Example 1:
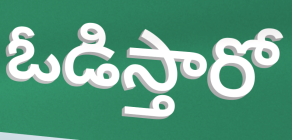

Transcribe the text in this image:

ఓడిస్తారో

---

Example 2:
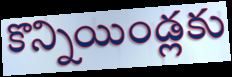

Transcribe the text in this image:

కొన్నియిండ్లకు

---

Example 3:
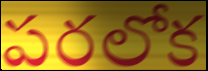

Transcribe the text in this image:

పరలోక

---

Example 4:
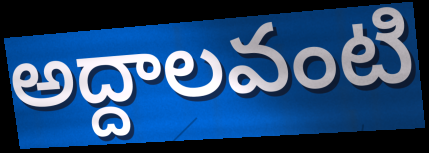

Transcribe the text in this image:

అద్దాలవంటి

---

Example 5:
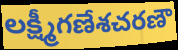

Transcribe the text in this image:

లక్ష్మీగణేశచరణౌ